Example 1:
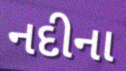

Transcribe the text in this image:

નદીના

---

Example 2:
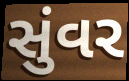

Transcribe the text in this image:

સુંવર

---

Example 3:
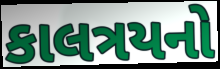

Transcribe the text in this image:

કાલત્રયનો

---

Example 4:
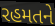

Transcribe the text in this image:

રહમતને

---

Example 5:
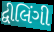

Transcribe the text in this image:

દ્વીલિંગી